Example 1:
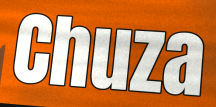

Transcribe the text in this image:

Chuza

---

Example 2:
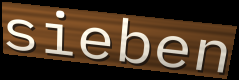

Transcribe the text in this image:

sieben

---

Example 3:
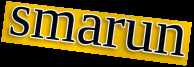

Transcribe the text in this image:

smarun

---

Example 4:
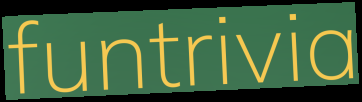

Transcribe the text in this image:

funtrivia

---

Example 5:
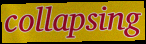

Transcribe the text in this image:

collapsing